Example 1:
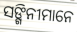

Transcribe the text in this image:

ସଙ୍ଗିନୀମାନେ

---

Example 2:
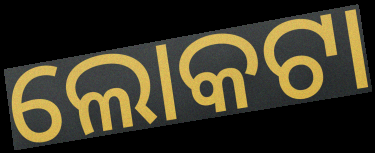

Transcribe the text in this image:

ଲୋକଟା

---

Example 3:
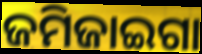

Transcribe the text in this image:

ଜମିଜାଇଗା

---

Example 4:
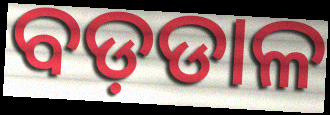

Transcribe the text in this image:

ବଡ଼ଡାଳ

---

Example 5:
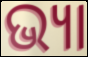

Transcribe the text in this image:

ଭ୍ୟା